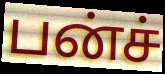
பன்ச்